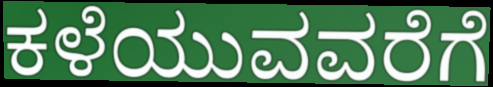
ಕಳೆಯುವವರೆಗೆ